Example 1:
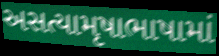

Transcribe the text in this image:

અસત્યામૃષાભાષામાં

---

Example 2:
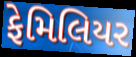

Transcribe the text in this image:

ફેમિલિયર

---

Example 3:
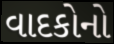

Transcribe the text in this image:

વાદકોનો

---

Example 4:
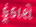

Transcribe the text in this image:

ફૂંકાશે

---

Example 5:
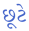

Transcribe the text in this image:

છૂટે